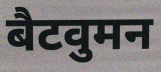
बैटवुमन